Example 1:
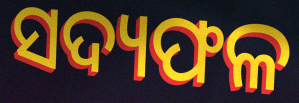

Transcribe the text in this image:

ସଦ୍ୟଫଳ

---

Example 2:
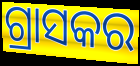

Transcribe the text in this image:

ଗ୍ରାସକର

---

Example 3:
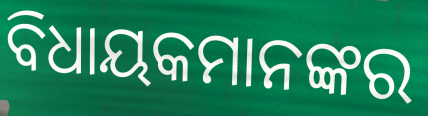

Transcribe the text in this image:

ବିଧାୟକମାନଙ୍କର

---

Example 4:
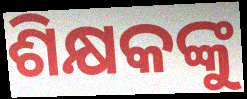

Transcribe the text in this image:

ଶିକ୍ଷକଙ୍କୁ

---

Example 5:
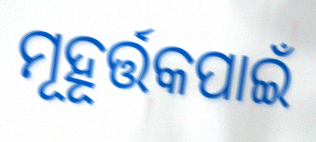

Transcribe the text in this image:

ମୂହୂର୍ତ୍ତକପାଇଁ